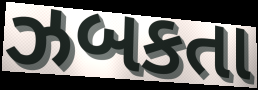
ઝબકતા